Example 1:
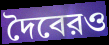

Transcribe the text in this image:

দৈবেরও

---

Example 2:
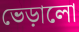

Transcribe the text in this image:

ভেড়ালো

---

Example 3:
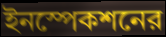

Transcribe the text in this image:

ইনস্পেকশনের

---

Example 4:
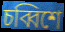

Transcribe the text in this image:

চব্বিশে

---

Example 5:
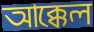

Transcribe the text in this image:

আক্কেল